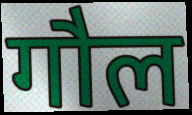
गौल